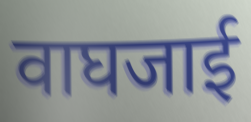
वाघजाई